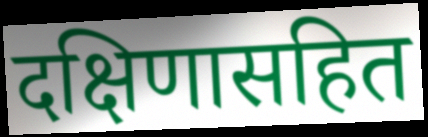
दक्षिणासहित